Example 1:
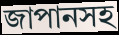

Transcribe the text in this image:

জাপানসহ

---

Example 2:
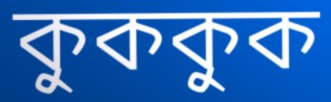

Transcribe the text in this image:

কুককুক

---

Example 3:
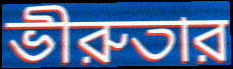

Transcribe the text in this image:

ভীরুতার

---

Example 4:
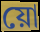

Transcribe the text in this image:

য়ো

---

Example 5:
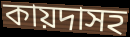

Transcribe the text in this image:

কায়দাসহ